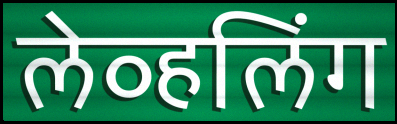
लेव्हलिंग